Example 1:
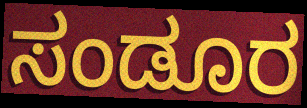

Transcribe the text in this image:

ಸಂಡೂರ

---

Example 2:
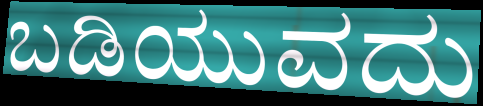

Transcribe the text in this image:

ಬಡಿಯುವದು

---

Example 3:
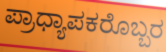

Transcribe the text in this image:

ಪ್ರಾಧ್ಯಾಪಕರೊಬ್ಬರ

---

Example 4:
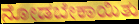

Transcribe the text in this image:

ನೋಡಬೇಕಾಯಿತು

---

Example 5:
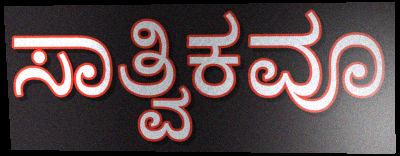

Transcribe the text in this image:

ಸಾತ್ವಿಕವೂ